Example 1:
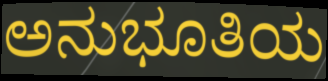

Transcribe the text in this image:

ಅನುಭೂತಿಯ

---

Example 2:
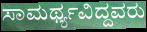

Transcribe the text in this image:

ಸಾಮರ್ಥ್ಯವಿದ್ದವರು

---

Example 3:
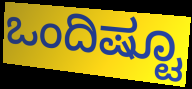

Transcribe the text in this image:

ಒಂದಿಷ್ಟೂ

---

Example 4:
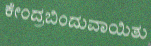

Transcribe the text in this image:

ಕೇಂದ್ರಬಿಂದುವಾಯಿತು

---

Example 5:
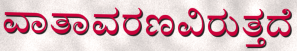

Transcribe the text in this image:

ವಾತಾವರಣವಿರುತ್ತದೆ